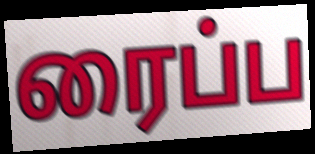
ரைப்ப